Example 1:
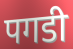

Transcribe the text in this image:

पगडी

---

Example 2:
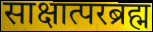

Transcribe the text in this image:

साक्षात्परब्रह्म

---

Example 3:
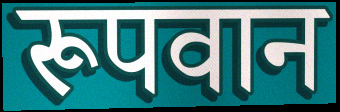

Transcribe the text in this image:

रूपवान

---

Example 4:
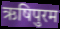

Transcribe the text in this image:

ऋषिपुरम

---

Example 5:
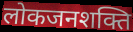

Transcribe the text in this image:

लोकजनशक्ति